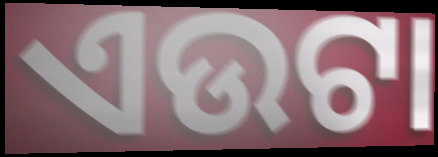
ଏଉଟା